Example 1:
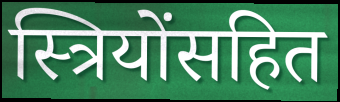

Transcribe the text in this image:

स्त्रियोंसहित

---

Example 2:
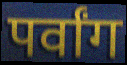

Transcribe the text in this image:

पर्वांग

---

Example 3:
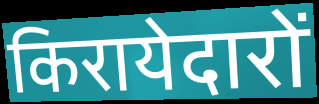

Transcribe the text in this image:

किरायेदारों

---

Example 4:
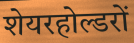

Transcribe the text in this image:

शेयरहोल्डरों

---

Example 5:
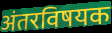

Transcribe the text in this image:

अंतरविषयक